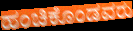
ಹಂಚಿಕೊಂಡವರು